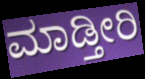
ಮಾಡ್ತೀರಿ